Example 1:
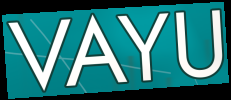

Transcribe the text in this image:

VAYU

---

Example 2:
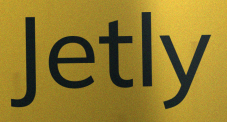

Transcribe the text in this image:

Jetly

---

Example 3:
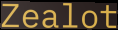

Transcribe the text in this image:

Zealot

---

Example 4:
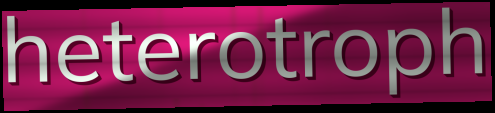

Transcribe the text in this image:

heterotroph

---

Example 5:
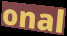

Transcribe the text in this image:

onal